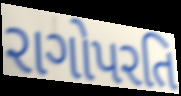
રાગોપરતિ